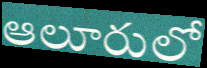
ఆలూరులో